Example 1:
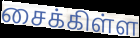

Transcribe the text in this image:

சைக்கிள்ள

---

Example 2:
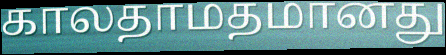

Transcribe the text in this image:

காலதாமதமானது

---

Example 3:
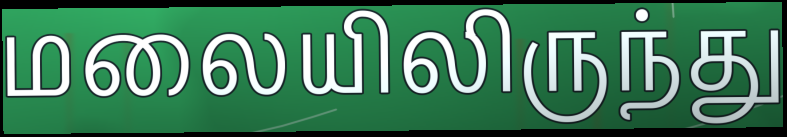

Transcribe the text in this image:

மலையிலிருந்து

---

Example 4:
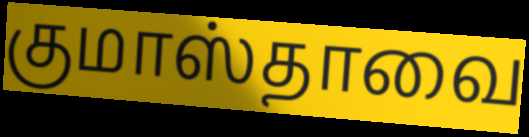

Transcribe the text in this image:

குமாஸ்தாவை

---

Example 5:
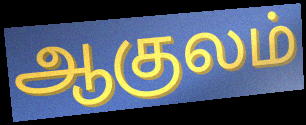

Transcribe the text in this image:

ஆகுலம்